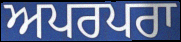
ਅਪਰਪਰਾ